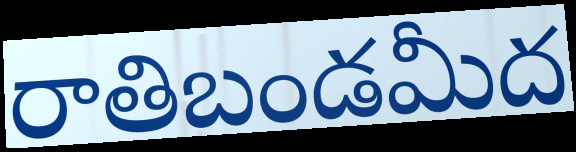
రాతిబండమీద